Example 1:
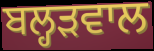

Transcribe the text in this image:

ਬਲ੍ਹੜਵਾਲ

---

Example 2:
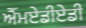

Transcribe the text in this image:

ਐੱਮਏਡੀਏਡੀ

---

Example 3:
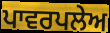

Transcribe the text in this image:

ਪਾਵਰਪਲੇਅ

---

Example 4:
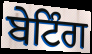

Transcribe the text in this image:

ਬੇਟਿੰਗ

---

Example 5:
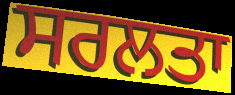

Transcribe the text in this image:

ਸਰਲਤਾ